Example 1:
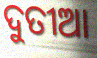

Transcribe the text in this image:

ଦୁତୀଆ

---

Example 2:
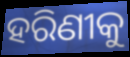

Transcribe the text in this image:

ହରିଣୀକୁ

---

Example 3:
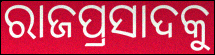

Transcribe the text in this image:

ରାଜପ୍ରସାଦକୁ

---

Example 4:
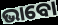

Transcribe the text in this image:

ଭାବୋ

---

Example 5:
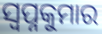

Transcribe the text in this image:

ସ୍ଵପ୍ନକୁମାର